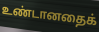
உண்டானதைக்